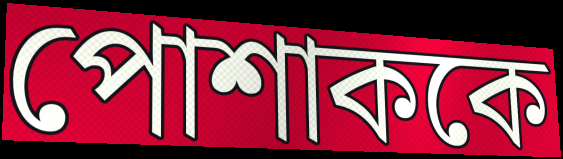
পোশাককে